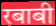
रबाबी